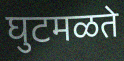
घुटमळते